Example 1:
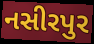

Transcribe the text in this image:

નસીરપુર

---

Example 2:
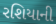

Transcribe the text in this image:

રશિયાની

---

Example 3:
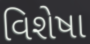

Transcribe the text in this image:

વિશેષા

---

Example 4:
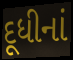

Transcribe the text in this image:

દૂધીનાં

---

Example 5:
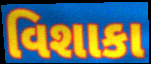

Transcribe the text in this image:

વિશાકા